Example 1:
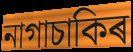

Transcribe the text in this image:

নাগাচাকিৰ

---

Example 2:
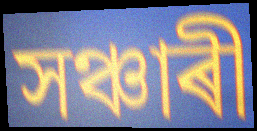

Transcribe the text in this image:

সঞ্চাৰী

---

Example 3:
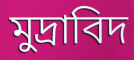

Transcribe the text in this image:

মুদ্ৰাবিদ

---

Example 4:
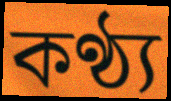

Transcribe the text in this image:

কণ্ঠ্য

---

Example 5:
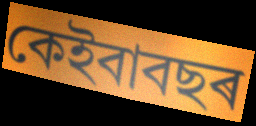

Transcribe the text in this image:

কেইবাবছৰ